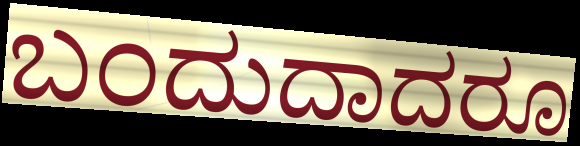
ಬಂದುದಾದರೂ